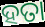
ହତା